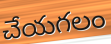
చేయగలం